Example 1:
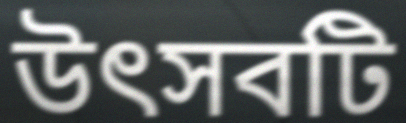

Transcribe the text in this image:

উৎসবটি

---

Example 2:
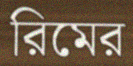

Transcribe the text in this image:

রিমের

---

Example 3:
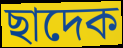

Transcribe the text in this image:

ছাদেক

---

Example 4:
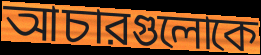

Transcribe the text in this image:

আচারগুলোকে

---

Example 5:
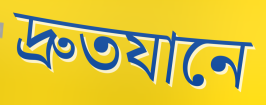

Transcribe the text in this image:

দ্রুতযানে